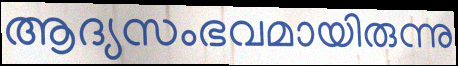
ആദ്യസംഭവമായിരുന്നു